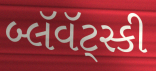
બ્લૅવૅટ્સ્કી